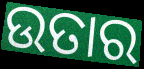
ଉତାର